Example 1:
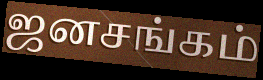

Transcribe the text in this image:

ஜனசங்கம்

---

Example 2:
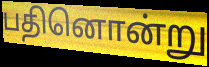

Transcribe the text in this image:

பதினொன்று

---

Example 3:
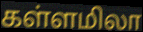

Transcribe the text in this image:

கள்ளமிலா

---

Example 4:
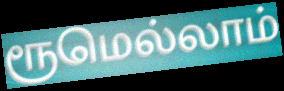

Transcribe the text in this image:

ரூமெல்லாம்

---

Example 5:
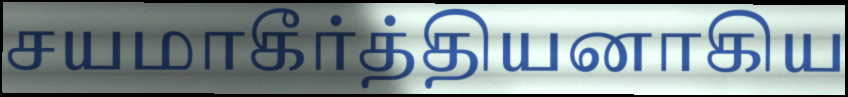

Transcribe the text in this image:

சயமாகீர்த்தியனாகிய